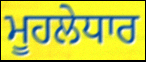
ਮੂਹਲੇਧਾਰ